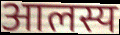
आलस्‍य